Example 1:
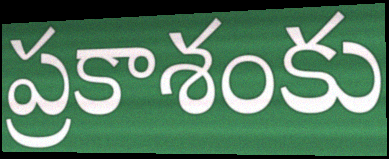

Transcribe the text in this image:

ప్రకాశంకు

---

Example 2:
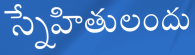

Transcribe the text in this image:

స్నేహితులందు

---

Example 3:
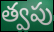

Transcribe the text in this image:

త్వపు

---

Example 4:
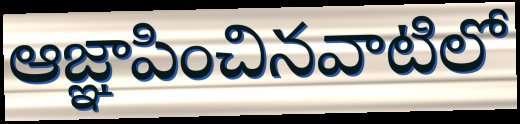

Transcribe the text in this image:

ఆజ్ఞాపించినవాటిలో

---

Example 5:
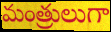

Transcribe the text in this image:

మంత్రులుగా